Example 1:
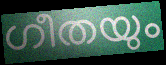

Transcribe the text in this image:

ഗീതയും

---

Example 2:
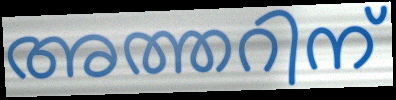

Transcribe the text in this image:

അത്തറിന്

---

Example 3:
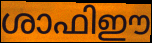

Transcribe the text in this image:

ശാഫിഈ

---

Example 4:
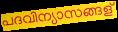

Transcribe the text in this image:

പദവിന്യാസങ്ങള്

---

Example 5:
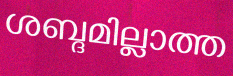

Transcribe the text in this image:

ശബ്ദമില്ലാത്ത